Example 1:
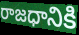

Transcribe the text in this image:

రాజధానికి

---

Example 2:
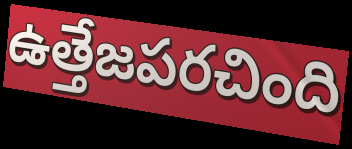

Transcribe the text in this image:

ఉత్తేజపరచింది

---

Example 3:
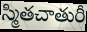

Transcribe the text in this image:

స్మితచాతురీ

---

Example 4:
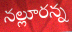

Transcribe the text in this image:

నల్లూరన్న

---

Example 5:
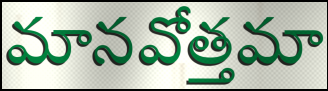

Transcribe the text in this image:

మానవోత్తమా